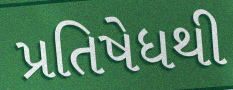
પ્રતિષેધથી